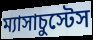
ম্যাসাচুস্টেস